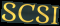
SCSI